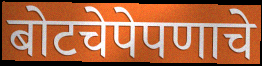
बोटचेपेपणाचे